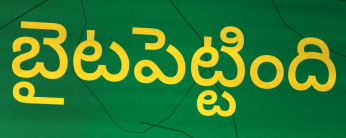
బైటపెట్టింది